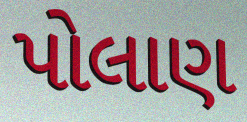
પોલાણ